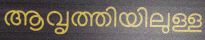
ആവൃത്തിയിലുള്ള